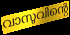
വാസുവിന്റെ